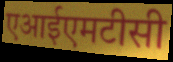
एआईएमटीसी